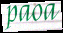
paoa